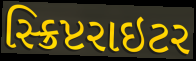
સ્ક્રિપ્ટરાઇટર